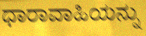
ಧಾರಾವಾಹಿಯನ್ನು